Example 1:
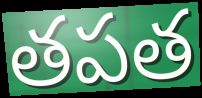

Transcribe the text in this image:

తపత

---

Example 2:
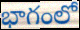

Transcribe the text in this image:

భాగంలో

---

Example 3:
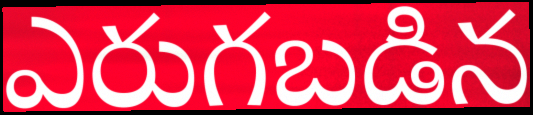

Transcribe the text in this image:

ఎరుగబడిన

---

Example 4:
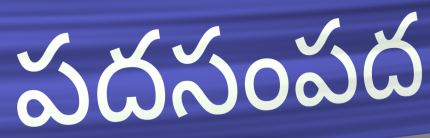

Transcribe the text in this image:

పదసంపద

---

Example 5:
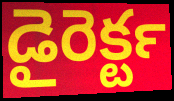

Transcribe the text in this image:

డైరెక్టర్‍